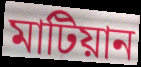
মাটিয়ান